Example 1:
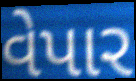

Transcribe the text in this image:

વેપાર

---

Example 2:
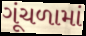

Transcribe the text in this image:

ગૂંચળામાં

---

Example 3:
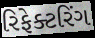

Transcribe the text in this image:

રિફેક્ટરિંગ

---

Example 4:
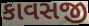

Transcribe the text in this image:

કાવસજી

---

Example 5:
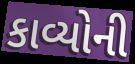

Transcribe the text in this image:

કાવ્યોની